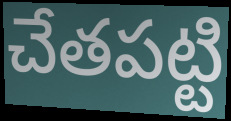
చేతపట్టి